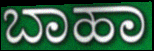
ಬಾಹಾ